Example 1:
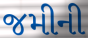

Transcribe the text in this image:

જમીની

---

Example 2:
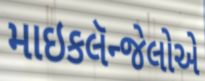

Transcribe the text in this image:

માઇકલૅન્જેલોએ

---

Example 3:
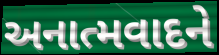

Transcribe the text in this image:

અનાત્મવાદને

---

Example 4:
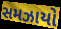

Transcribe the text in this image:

સમઝાયો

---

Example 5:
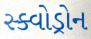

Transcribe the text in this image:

સ્ક્વોડ્રોન